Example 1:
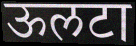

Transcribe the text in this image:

ऊलटा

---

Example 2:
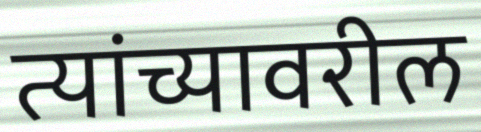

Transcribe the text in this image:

त्यांच्यावरील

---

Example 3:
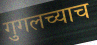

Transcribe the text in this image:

गुगलच्याच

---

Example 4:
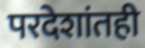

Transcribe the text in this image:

परदेशांतही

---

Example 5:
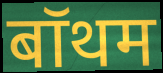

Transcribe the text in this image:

बॉथम